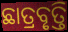
ଛାତ୍ରବୃତ୍ତି